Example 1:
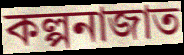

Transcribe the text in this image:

কল্পনাজাত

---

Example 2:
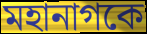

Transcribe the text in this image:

মহানাগকে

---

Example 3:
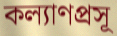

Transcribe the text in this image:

কল্যাণপ্রসূ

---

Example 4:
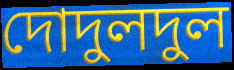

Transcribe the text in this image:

দোদুলদুল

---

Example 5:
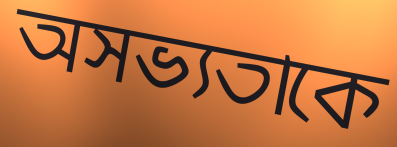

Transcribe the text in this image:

অসভ্যতাকে